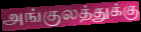
அங்குலத்துக்கு